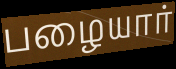
பழையார்